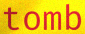
tomb